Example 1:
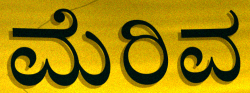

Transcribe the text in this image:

ಮೆರಿವ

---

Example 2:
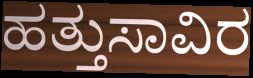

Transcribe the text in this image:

ಹತ್ತುಸಾವಿರ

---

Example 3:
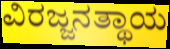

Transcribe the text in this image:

ವಿರಜ್ಜನತ್ಥಾಯ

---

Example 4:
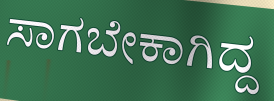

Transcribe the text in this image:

ಸಾಗಬೇಕಾಗಿದ್ದ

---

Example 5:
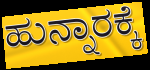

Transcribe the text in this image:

ಹುನ್ನಾರಕ್ಕೆ